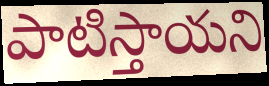
పాటిస్తాయని